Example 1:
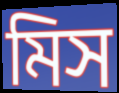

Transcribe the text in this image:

মিস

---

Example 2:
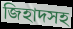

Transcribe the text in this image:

জিহাদসহ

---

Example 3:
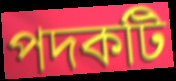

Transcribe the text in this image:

পদকটি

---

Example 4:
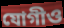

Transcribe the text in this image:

যোগীও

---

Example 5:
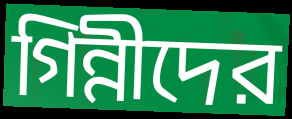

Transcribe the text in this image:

গিন্নীদের